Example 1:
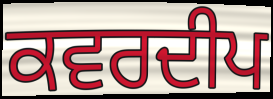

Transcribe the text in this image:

ਕਵਰਦੀਪ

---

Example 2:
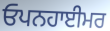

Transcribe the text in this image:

ਓਪਨਹਾਈਮਰ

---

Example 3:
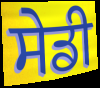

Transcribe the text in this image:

ਸੇਡੀ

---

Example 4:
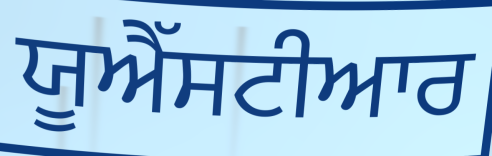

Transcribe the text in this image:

ਯੂਐੱਸਟੀਆਰ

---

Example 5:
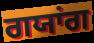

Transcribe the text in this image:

ਗਯਾਂਗ